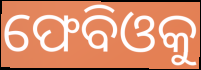
ଫେବିଓକୁ